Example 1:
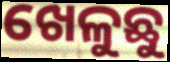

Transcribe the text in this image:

ଖେଳୁଛୁ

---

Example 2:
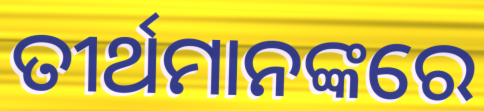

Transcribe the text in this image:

ତୀର୍ଥମାନଙ୍କରେ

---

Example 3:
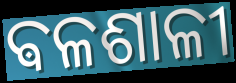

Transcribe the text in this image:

ଵଳଶାଳୀ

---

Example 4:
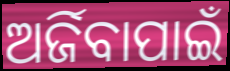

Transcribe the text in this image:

ଅର୍ଜିବାପାଇଁ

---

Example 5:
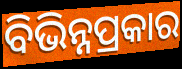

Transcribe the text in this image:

ବିଭିନ୍ନପ୍ରକାର